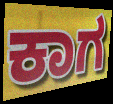
ಕಾಗ